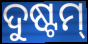
ଦୁଷ୍ଟମ୍